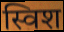
स्विश